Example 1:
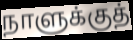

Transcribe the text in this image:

நாளுக்குத்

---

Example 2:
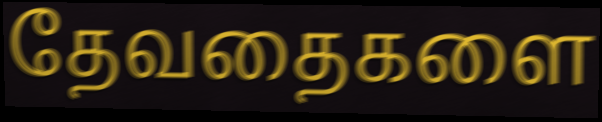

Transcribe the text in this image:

தேவதைகளை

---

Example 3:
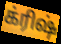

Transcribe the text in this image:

க்ரிஷ்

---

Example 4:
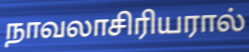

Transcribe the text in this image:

நாவலாசிரியரால்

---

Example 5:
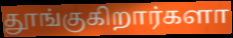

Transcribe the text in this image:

தூங்குகிறார்களா